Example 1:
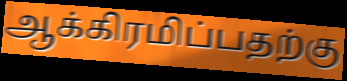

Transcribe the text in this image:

ஆக்கிரமிப்பதற்கு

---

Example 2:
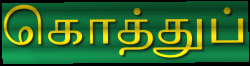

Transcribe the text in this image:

கொத்துப்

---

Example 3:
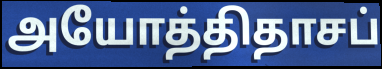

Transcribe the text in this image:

அயோத்திதாசப்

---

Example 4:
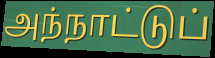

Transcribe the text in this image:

அந்நாட்டுப்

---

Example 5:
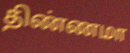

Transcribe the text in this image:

திண்ணமா